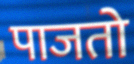
पाजतो